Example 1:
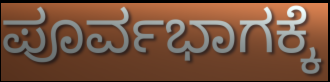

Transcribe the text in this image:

ಪೂರ್ವಭಾಗಕ್ಕೆ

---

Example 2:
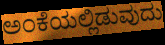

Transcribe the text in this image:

ಅಂಕೆಯಲ್ಲಿಡುವುದು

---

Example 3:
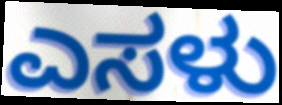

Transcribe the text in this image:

ಎಸಳು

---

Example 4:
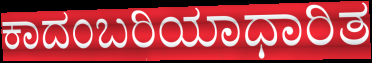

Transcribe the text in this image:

ಕಾದಂಬರಿಯಾಧಾರಿತ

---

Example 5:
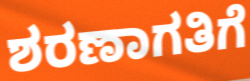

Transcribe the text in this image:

ಶರಣಾಗತಿಗೆ